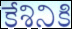
కేశినికి